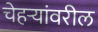
चेहऱ्यांवरील